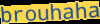
brouhaha